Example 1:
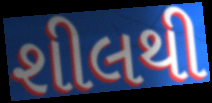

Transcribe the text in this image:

શીલથી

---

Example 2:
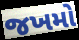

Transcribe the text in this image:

જખમો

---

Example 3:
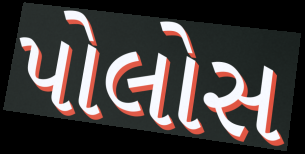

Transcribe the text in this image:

પોલોસ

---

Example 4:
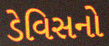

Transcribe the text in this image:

ડેવિસનો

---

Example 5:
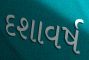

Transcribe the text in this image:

દશાવર્ષ